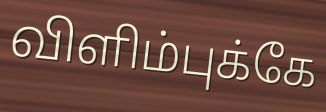
விளிம்புக்கே